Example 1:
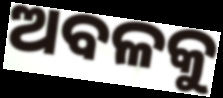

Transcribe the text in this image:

ଅବଳକୁ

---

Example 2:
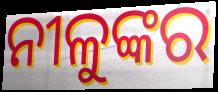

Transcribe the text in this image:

ନୀଳୁଙ୍କର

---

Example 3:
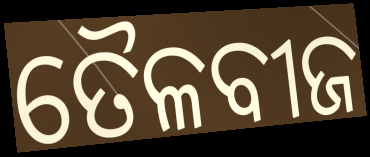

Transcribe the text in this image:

ତୈଳବୀଜ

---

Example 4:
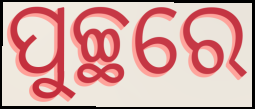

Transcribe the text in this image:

ପୁଚ୍ଛରେ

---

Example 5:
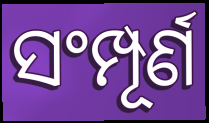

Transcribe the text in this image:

ସଂମ୍ପୂର୍ଣ